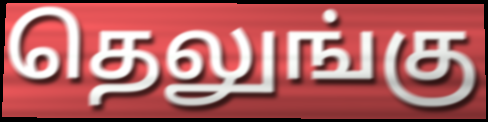
தெலுங்கு